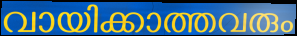
വായിക്കാത്തവരും